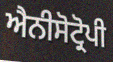
ਐਨੀਸੋਟ੍ਰੋਪੀ